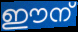
ഈന്